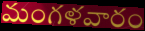
మంగళవారం